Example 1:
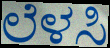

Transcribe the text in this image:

ಲೆಳಸಿ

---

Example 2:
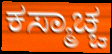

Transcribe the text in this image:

ಕಸ್ಮಾಚ್ಚ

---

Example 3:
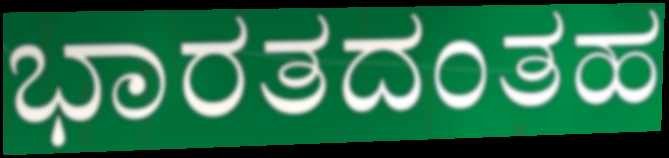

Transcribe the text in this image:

ಭಾರತದಂತಹ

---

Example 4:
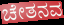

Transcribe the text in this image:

ಚೇತನವ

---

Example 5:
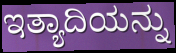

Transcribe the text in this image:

ಇತ್ಯಾದಿಯನ್ನು